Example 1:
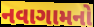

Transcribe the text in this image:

નવાગામનો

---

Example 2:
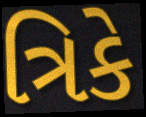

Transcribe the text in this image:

ત્રિકે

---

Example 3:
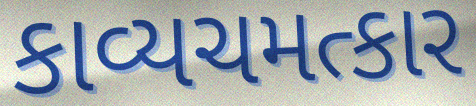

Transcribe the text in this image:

કાવ્યચમત્કાર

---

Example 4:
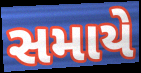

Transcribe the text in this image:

સમાયે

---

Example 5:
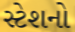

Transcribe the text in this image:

સ્ટેશનો